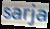
sarja